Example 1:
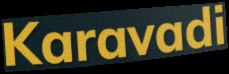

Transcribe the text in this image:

Karavadi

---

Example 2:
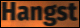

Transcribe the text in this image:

Hangst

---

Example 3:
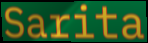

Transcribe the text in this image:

Sarita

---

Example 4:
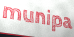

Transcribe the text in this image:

munipa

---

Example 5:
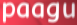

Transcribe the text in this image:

paagu